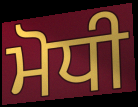
ਮੋਧੀ